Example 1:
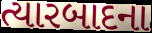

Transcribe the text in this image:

ત્યારબાદના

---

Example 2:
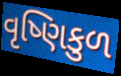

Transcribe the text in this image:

વૃષ્ણિકુળ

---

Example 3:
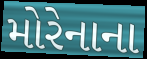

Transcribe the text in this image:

મોરેનાના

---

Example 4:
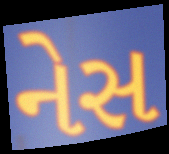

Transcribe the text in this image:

નેસ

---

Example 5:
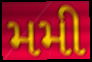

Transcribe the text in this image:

મમી